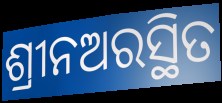
ଶ୍ରୀନଅରସ୍ଥିତ